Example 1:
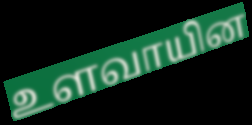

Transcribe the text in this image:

உளவாயின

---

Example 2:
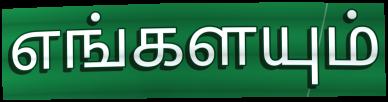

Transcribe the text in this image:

எங்களயும்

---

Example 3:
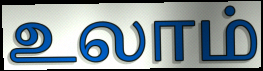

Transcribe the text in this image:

உலாம்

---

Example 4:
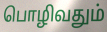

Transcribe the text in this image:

பொழிவதும்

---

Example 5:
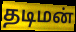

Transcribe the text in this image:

தடிமன்